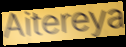
Aitereya